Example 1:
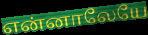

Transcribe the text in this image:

என்னாலேயே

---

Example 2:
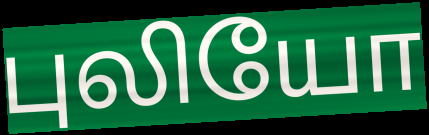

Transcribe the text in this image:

புலியோ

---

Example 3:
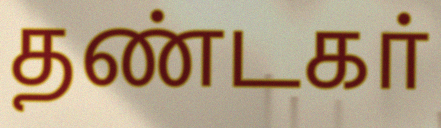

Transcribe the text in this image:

தண்டகர்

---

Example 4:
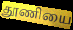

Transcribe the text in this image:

தூணியை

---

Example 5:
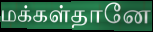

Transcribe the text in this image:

மக்கள்தானே